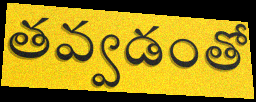
తవ్వడంతో